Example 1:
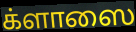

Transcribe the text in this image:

க்ளாஸை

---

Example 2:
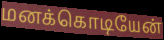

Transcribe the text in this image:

மனக்கொடியேன்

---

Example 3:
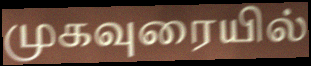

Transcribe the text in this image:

முகவுரையில்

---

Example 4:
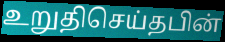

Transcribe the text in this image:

உறுதிசெய்தபின்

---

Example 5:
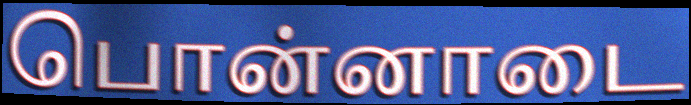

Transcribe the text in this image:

பொன்னாடை